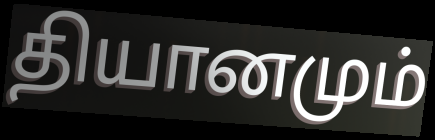
தியானமும்